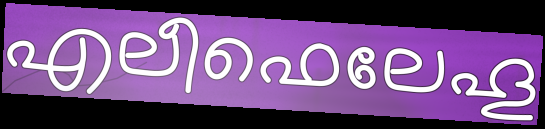
എലീഫെലേഹൂ